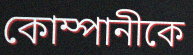
কোম্পানীকে